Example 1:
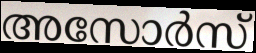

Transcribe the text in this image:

അസോർസ്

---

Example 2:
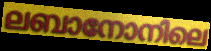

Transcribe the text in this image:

ലബാനോനിലെ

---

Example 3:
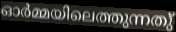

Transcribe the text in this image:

ഓർമ്മയിലെത്തുന്നതു്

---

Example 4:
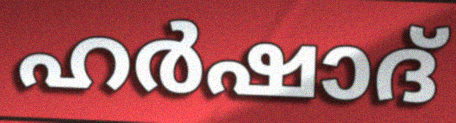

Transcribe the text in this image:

ഹർഷാദ്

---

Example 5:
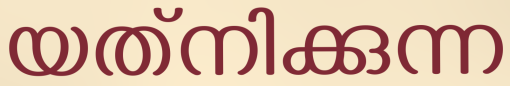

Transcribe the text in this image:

യത്‌നിക്കുന്ന